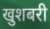
खुशबरी